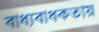
বাধ্যবাধকতায়